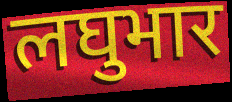
लघुभार